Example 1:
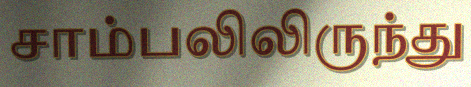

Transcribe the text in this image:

சாம்பலிலிருந்து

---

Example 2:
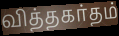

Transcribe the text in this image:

வித்தகர்தம்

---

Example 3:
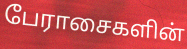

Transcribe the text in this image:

பேராசைகளின்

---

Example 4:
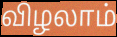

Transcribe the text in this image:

விழலாம்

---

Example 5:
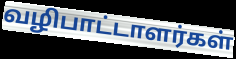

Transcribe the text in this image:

வழிபாட்டாளர்கள்